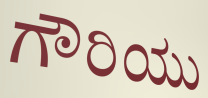
ಗೌರಿಯು